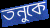
তনুকে